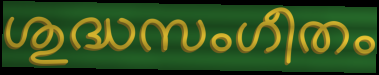
ശുദ്ധസംഗീതം